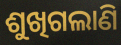
ଶୁଖିଗଲାଣି